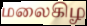
மலைகிழ